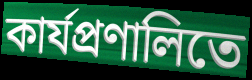
কার্যপ্রণালিতে